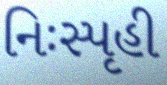
નિઃસ્પૃહી